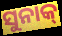
ସୁନାକ୍